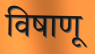
विषाणू